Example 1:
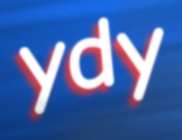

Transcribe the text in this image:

ydy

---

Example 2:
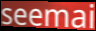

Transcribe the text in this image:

seemai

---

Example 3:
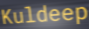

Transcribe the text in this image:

Kuldeep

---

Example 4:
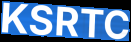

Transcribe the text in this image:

KSRTC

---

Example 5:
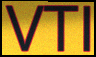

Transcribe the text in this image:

VTI